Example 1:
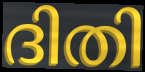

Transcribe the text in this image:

ദിതി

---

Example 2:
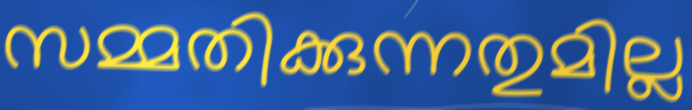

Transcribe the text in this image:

സമ്മതിക്കുന്നതുമില്ല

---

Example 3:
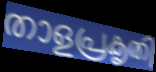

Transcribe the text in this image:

താളപ്രകൃതി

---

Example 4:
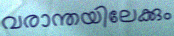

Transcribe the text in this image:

വരാന്തയിലേക്കും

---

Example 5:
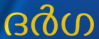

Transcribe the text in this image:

ദർഗ